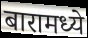
बारामध्ये